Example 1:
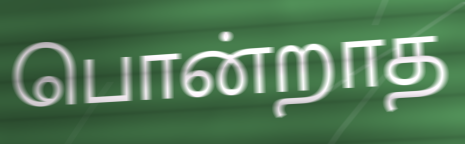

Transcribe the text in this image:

பொன்றாத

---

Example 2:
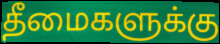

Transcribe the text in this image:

தீமைகளுக்கு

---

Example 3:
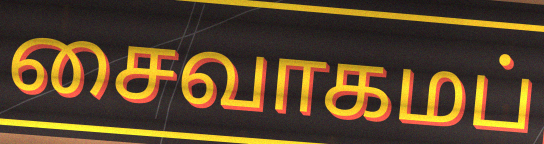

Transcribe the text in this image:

சைவாகமப்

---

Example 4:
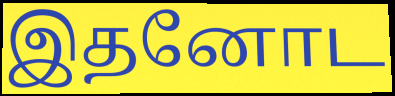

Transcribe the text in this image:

இதனோட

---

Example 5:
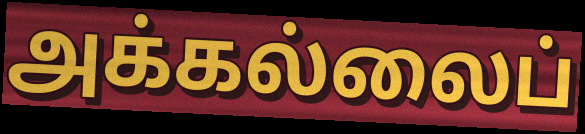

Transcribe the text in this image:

அக்கல்லைப்